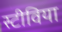
स्टीविया